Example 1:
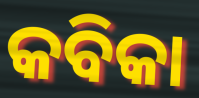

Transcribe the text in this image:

କବିକା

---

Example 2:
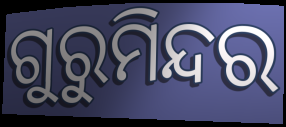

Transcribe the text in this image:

ଗୁରୁମିନ୍ଦର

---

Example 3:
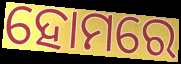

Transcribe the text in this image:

ହୋମରେ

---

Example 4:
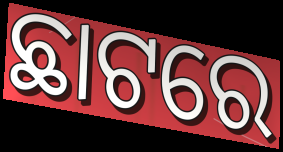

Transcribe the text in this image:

ଛାଟରେ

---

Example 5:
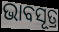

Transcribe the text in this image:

ଭାବସୂତ୍ର